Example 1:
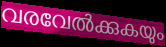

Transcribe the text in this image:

വരവേൽക്കുകയും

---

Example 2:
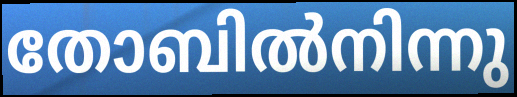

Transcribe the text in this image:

തോബിൽനിന്നു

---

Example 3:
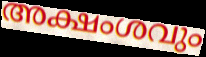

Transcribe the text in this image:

അക്ഷംശവും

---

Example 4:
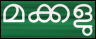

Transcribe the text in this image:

മക്കളു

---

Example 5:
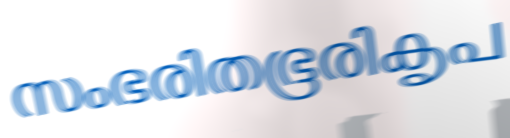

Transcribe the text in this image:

സംഭരിതഭൂരികൃപ